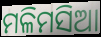
ମଳିମସିଆ